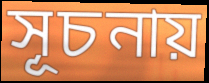
সূচনায়